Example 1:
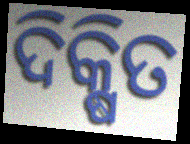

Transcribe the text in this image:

ଦିକ୍ଷିତ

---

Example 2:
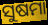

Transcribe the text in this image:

ସୁଷମା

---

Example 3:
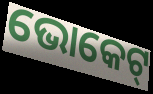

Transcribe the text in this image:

ଭୋକେଟ୍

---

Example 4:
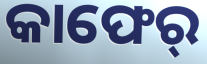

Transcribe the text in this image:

କାଫେର୍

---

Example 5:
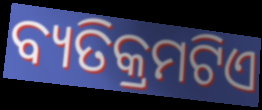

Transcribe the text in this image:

ବ୍ୟତିକ୍ରମଟିଏ